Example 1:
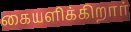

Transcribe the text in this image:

கையளிக்கிறார்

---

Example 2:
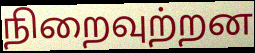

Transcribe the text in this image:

நிறைவுற்றன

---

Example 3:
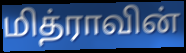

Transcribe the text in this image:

மித்ராவின்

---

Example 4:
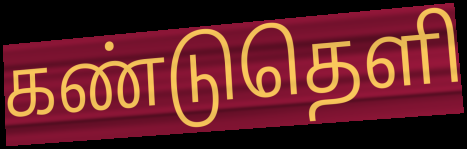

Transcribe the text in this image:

கண்டுதெளி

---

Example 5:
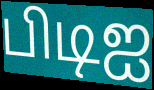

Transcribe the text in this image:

பிடிஐ